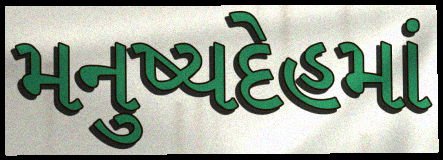
મનુષ્યદેહમાં